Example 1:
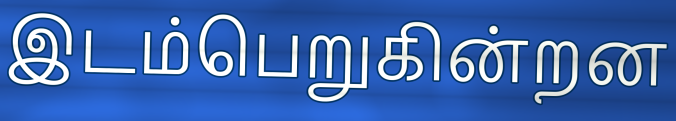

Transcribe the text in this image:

இடம்பெறுகின்றன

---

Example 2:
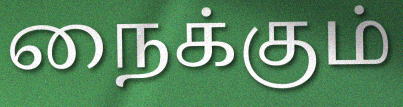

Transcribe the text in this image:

நைக்கும்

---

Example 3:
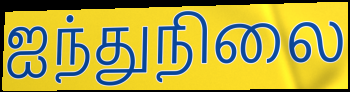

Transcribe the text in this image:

ஐந்துநிலை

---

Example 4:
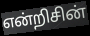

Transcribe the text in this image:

என்றிசின்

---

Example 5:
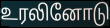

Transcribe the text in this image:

உரலினோடு